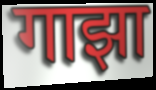
गाझा